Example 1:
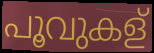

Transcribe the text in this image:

പൂവുകള്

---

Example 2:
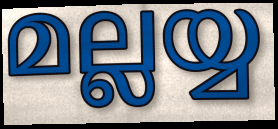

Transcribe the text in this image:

മല്ലയ്യ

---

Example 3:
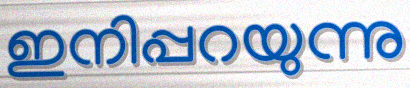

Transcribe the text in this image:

ഇനിപ്പറയുന്നു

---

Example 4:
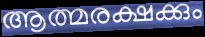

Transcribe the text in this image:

ആത്മരക്ഷക്കും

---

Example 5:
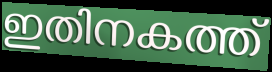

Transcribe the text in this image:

ഇതിനകത്ത്